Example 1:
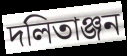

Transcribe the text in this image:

দলিতাঞ্জন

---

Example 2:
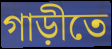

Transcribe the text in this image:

গাড়ীতে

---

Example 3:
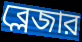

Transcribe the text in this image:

ব্লেজার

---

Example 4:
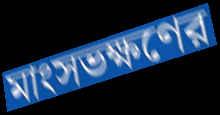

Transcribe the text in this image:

মাংসভক্ষণের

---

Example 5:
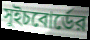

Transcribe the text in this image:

সুইচবোর্ডের